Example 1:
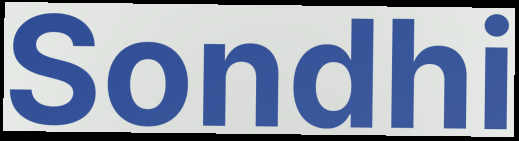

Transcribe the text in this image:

Sondhi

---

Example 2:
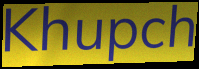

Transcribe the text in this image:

Khupch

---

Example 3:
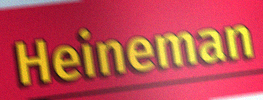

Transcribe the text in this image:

Heineman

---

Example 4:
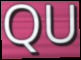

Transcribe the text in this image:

QU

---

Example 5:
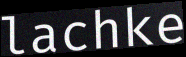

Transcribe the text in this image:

lachke